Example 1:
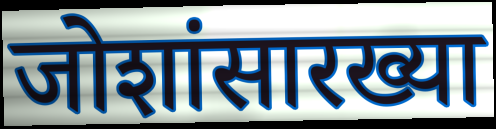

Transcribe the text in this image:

जोशांसारख्या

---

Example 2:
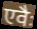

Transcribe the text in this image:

एवैः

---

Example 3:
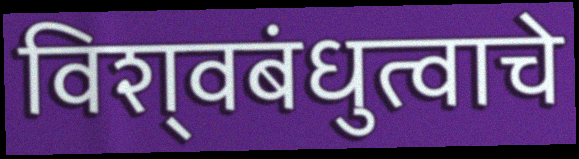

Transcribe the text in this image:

विश्वबंधुत्वाचे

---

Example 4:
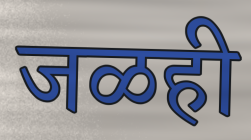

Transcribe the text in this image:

जळही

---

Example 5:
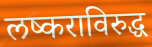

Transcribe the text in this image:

लष्कराविरुद्ध